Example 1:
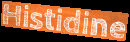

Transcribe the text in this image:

Histidine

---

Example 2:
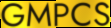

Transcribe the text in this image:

GMPCS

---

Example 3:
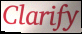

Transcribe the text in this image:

Clarify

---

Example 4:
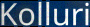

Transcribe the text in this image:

Kolluri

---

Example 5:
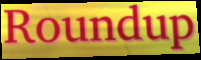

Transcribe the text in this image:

Roundup